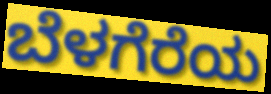
ಬೆಳಗೆರೆಯ